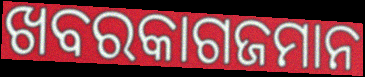
ଖବରକାଗଜମାନ